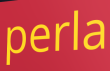
perla